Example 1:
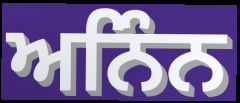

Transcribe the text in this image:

ਅਨਿੰਨ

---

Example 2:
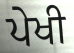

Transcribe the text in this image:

ਪੇਖੀ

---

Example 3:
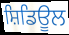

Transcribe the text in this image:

ਸ਼ਿਡਿਊਲ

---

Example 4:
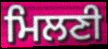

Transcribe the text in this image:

ਮਿਲਣੀ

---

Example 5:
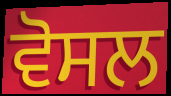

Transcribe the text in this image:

ਵੋਸਲ